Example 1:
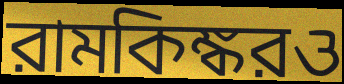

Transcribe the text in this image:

রামকিঙ্করও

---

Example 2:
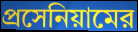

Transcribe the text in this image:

প্রসেনিয়ামের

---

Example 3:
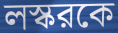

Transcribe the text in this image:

লস্করকে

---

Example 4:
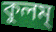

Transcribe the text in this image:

কুলম্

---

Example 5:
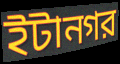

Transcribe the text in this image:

ইটানগর